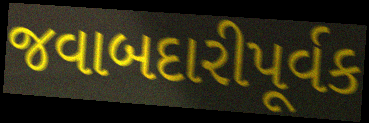
જવાબદારીપૂર્વક